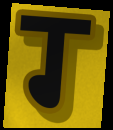
ग्‍